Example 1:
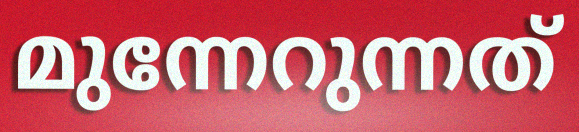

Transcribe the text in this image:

മുന്നേറുന്നത്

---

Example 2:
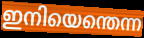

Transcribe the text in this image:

ഇനിയെന്തെന്ന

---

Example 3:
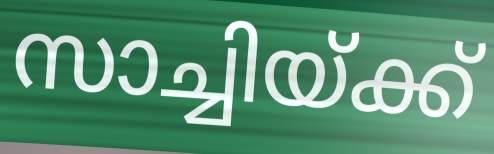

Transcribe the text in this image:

സാച്ചിയ്ക്ക്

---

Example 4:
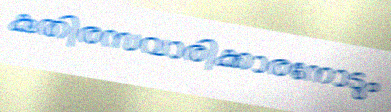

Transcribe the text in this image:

കുതിരസവാരിക്കാരനോടും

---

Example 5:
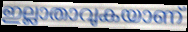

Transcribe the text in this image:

ഇല്ലാതാവുകയാണ്